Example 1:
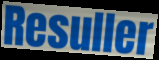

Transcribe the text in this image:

Resuller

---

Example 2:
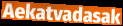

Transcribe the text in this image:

Aekatvadasak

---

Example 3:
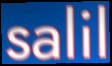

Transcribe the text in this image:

salil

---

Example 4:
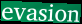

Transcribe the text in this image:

evasion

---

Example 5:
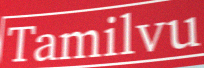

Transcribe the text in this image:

Tamilvu